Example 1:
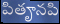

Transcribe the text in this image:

పితౄనపి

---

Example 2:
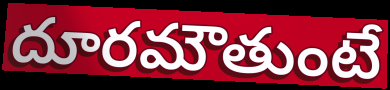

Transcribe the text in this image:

దూరమౌతుంటే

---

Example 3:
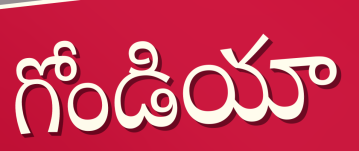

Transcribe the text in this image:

గోండియా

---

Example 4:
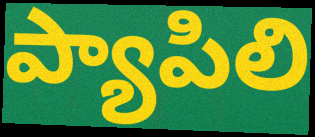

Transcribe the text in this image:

ప్యాపిలి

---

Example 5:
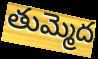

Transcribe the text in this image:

తుమ్మెద